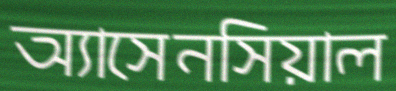
অ্যাসেনসিয়াল